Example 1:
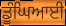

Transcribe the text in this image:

ਡੂੰਘਿਆਈ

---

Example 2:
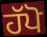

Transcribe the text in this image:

ਹੱਪੋ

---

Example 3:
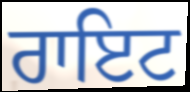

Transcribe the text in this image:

ਰਾਇਟ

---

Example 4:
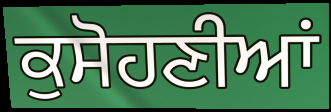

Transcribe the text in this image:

ਕੁਸੋਹਣੀਆਂ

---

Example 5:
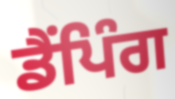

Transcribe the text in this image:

ਡੈਂਪਿੰਗ